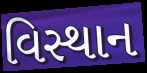
વિસ્થાન